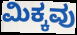
ಮಿಕ್ಕವು